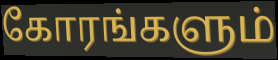
கோரங்களும்